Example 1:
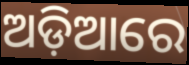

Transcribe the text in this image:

ଅଡ଼ିଆରେ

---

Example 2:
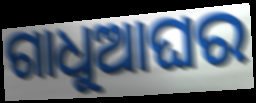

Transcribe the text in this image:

ଗାଧୁଆଘର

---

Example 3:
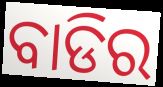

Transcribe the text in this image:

ବାଡିର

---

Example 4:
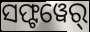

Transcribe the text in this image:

ସଫ୍ଟୱେର୍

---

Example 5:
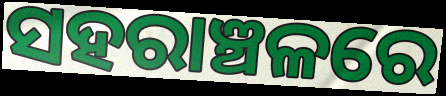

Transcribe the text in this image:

ସହରାଞ୍ଚଳରେ